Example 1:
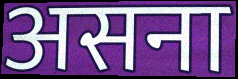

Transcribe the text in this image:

असना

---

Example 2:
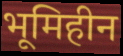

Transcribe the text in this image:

भूमिहीन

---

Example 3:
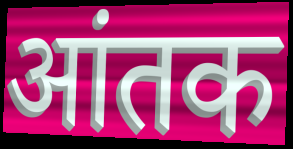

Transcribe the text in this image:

आंतक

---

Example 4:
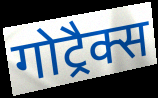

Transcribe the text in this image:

गोट्रैक्स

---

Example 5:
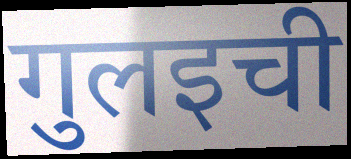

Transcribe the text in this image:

गुलइची